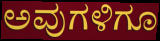
ಅವುಗಳಿಗೂ